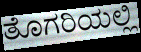
ತೊಗರಿಯಲ್ಲಿ